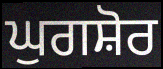
ਘੁਗਸ਼ੋਰ